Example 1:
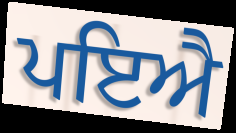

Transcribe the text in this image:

ਪਇਐ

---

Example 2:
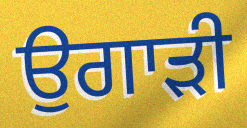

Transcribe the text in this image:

ਉਗਾੜੀ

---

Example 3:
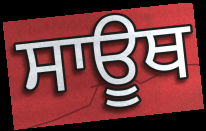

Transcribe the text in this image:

ਸਾਊਥ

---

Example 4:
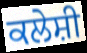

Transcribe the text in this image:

ਕਲੇਸ਼ੀ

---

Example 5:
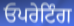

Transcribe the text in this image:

ਓਪਰੇਟਿੰਗ